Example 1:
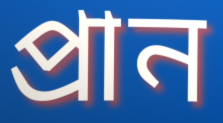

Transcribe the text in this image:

প্রান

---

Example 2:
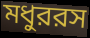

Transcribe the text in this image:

মধুররস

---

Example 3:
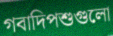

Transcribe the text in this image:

গবাদিপশুগুলো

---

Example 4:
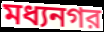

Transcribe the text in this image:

মধ্যনগর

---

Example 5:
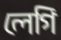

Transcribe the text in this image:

লেগি